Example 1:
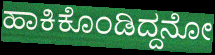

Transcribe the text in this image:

ಹಾಕಿಕೊಂಡಿದ್ದನೋ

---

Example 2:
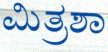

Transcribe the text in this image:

ಮಿತ್ರಶಾ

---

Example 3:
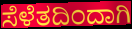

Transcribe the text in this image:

ಸೆಳೆತದಿಂದಾಗಿ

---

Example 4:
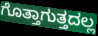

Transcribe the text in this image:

ಗೊತ್ತಾಗುತ್ತದಲ್ಲ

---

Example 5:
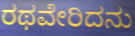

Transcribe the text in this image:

ರಥವೇರಿದನು